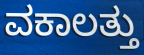
ವಕಾಲತ್ತು